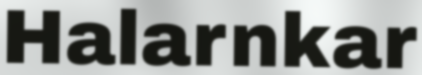
Halarnkar